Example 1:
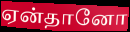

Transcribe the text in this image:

ஏன்தானோ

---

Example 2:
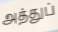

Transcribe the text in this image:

அத்துப்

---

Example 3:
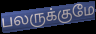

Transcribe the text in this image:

பலருக்குமே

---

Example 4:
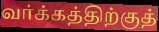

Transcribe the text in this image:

வர்க்கத்திற்குத்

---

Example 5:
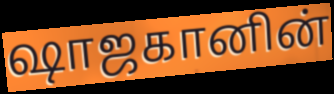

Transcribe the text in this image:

ஷாஜகானின்